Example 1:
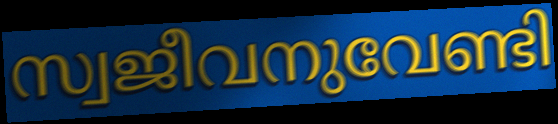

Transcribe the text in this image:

സ്വജീവനുവേണ്ടി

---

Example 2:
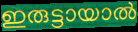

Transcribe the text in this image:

ഇരുട്ടായാൽ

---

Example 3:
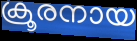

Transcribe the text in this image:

ക്രൂരനായ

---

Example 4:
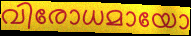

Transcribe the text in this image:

വിരോധമായോ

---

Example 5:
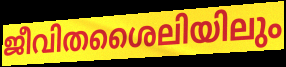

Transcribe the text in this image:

ജീവിതശൈലിയിലും